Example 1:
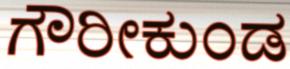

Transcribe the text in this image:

ಗೌರೀಕುಂಡ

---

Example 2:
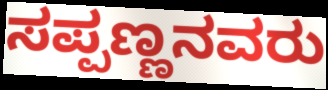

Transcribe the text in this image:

ಸಪ್ಪಣ್ಣನವರು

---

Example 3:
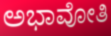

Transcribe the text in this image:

ಅಭಾವೋತಿ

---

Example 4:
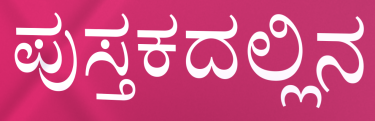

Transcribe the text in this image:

ಪುಸ್ತಕದಲ್ಲಿನ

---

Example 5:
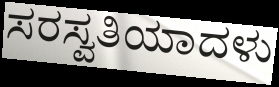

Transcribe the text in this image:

ಸರಸ್ವತಿಯಾದಳು